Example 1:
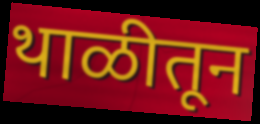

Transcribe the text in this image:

थाळीतून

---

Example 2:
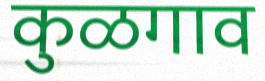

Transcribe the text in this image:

कुळगाव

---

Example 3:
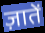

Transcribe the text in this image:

ज़ातें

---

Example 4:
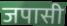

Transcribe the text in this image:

जपासी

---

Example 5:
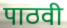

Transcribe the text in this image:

पाठवी